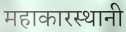
महाकारस्थानी